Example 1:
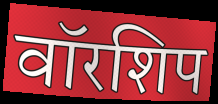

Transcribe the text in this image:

वॉरशिप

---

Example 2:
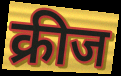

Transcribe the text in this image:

क्रीज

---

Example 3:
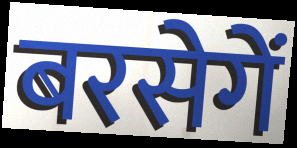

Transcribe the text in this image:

बरसेगें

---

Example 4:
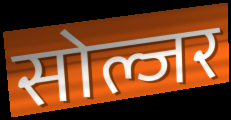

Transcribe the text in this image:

सोल्जर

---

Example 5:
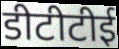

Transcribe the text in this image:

डीटीटीई